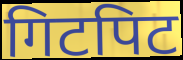
गिटपिट